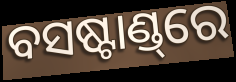
ବସଷ୍ଟାଣ୍ଡ୍‌ରେ